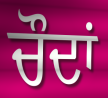
ਚੌਦਾਂ